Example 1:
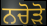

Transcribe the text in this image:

ਨਚੋੜੋ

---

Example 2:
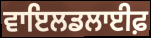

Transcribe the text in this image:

ਵਾਇਲਡਲਾਈਫ਼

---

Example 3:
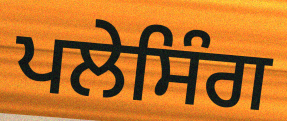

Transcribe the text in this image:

ਪਲੇਸਿੰਗ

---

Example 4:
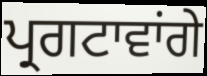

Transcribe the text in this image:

ਪ੍ਰਗਟਾਵਾਂਗੇ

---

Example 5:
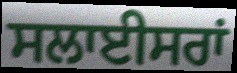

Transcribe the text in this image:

ਸਲਾਈਸਰਾਂ